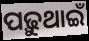
ପଢ଼ୁଥାଇଁ